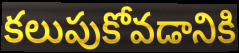
కలుపుకోవడానికి